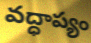
వద్ధాప్యం